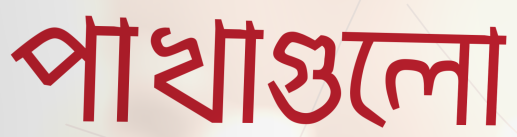
পাখাগুলো